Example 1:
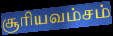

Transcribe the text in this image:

சூரியவம்சம்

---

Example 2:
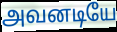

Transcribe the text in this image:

அவனடியே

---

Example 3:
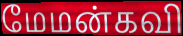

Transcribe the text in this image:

மேமன்கவி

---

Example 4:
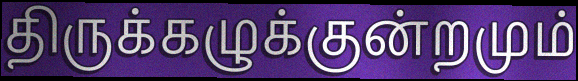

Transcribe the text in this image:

திருக்கழுக்குன்றமும்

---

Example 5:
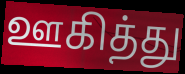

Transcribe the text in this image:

ஊகித்து